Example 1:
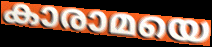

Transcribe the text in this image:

കാരാമയെ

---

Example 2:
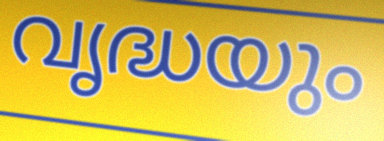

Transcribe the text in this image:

വൃദ്ധയും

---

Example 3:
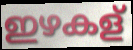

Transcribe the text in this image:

ഇഴകള്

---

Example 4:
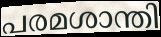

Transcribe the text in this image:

പരമശാന്തി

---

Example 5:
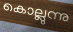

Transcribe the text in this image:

കൊല്ലുന്നു